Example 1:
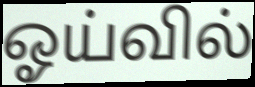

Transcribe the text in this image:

ஓய்வில்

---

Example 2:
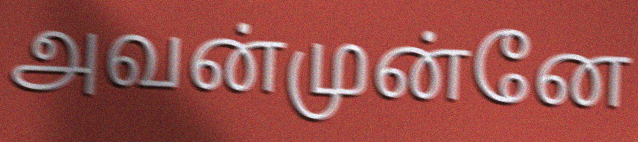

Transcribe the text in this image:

அவன்முன்னே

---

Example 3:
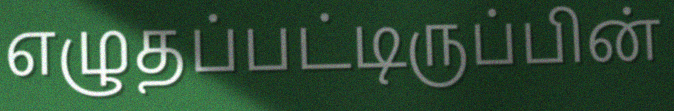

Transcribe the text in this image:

எழுதப்பட்டிருப்பின்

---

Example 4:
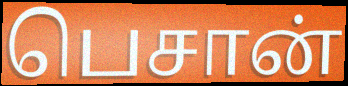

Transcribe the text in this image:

பெசான்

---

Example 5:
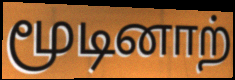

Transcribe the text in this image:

மூடினாற்